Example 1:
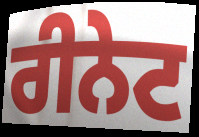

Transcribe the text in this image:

ਰੀਨੇਟ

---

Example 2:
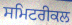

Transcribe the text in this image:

ਸਮਿਟਰੀਕਲ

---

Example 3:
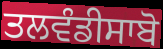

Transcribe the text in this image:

ਤਲਵੰਡੀਸਾਬੋ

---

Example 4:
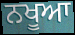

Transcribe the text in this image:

ਨਖੂਆ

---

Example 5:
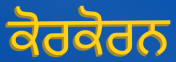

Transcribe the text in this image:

ਕੋਰਕੋਰਨ